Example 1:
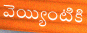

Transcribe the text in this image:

వెయ్యింటికి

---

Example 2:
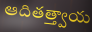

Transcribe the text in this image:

ఆదితత్త్వాయ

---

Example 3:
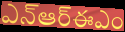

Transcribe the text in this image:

ఎన్ఆర్ఈఎం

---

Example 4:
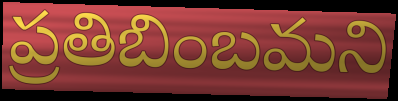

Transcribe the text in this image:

ప్రతిబింబమని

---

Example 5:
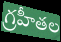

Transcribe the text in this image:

గ్రహీతల